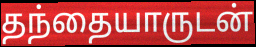
தந்தையாருடன்